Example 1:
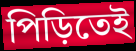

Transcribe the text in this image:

পিড়িতেই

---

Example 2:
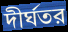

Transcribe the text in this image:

দীর্ঘতর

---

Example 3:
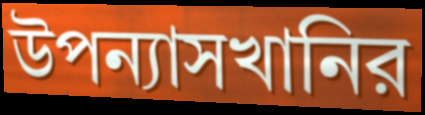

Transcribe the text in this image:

উপন্যাসখানির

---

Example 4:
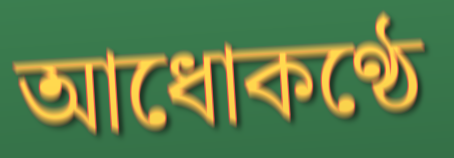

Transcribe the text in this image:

আধোকণ্ঠে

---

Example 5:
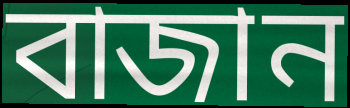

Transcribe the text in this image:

বাজান